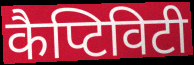
कैप्टिविटी